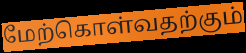
மேற்கொள்வதற்கும்